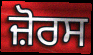
ਜ਼ੋਰਸ